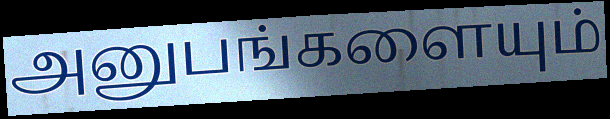
அனுபங்களையும்